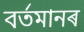
বৰ্তমানৰ